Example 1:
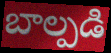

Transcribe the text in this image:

బాల్పడి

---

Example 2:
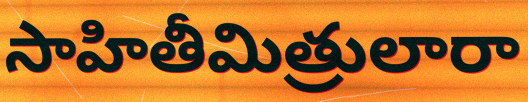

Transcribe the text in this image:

సాహితీమిత్రులారా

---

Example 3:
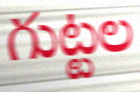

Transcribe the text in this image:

గుట్టల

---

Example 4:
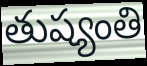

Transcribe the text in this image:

తుష్యంతి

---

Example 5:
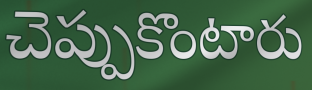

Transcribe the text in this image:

చెప్పుకొంటారు